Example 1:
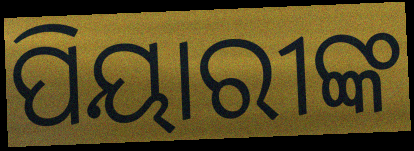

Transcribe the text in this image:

ପିୟାରୀଙ୍କ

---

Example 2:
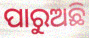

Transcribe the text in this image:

ପାରୁଅଛି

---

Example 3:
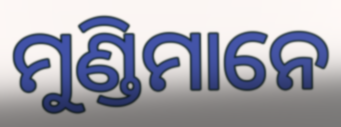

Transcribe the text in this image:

ମୁଣ୍ଡିମାନେ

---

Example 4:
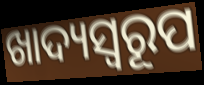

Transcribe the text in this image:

ଖାଦ୍ୟସ୍ୱରୂପ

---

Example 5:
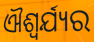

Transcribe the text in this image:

ଐଶ୍ୱର୍ଯ୍ୟର